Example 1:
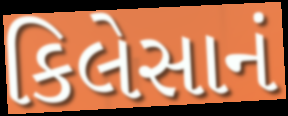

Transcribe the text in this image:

કિલેસાનં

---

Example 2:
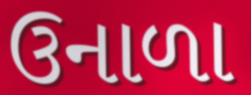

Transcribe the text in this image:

ઉનાળા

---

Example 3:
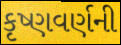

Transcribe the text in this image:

કૃષ્ણવર્ણની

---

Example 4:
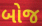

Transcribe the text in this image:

બોજ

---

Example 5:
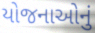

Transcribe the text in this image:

યોજનાઓનું